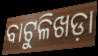
ବାଟୁଳିଖଡ଼ା